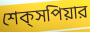
শেক্‌সপিয়ার